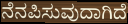
ನೆನಪಿಸುವುದಾಗಿದೆ